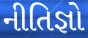
નીતિજ્ઞો